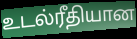
உடல்ரீதியான